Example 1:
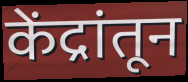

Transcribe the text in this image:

केंद्रांतून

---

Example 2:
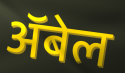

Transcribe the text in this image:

ॲबेल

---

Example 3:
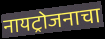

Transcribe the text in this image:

नायट्रोजनाचा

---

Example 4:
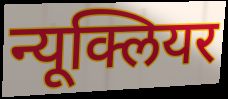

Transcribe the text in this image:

न्यूक्लियर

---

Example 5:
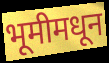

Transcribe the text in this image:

भूमीमधून